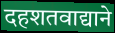
दहशतवाद्याने